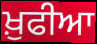
ਖ਼ੁਫੀਆ